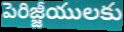
పెరిజ్జీయులకు